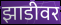
झाडीवर